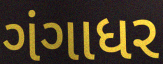
ગંગાધર